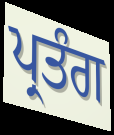
ਪ੍ਰਤੰਗ